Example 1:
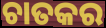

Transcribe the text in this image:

ଚାତକର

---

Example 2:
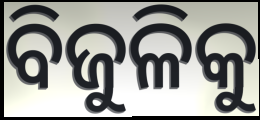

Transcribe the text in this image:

ବିଜୁଳିକୁ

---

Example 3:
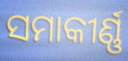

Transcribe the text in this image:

ସମାକୀର୍ଣ୍ଣ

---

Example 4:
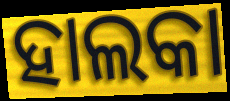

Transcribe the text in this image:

ହାଲକା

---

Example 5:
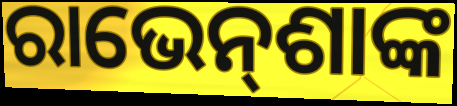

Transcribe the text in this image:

ରାଭେନ୍‌ଶାଙ୍କ